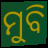
ମୁବି